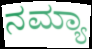
ನಮ್ಯಾ